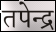
तपेन्द्र